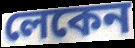
লেকেন